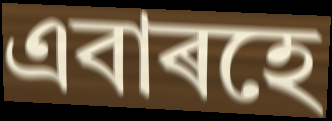
এবাৰহে